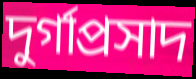
দুৰ্গাপ্ৰসাদ